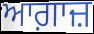
ਆਗ਼ਾਜ਼